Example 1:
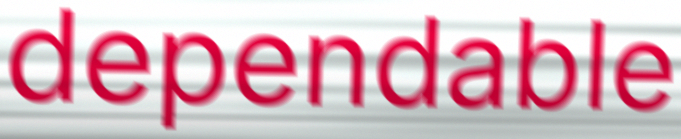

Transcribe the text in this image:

dependable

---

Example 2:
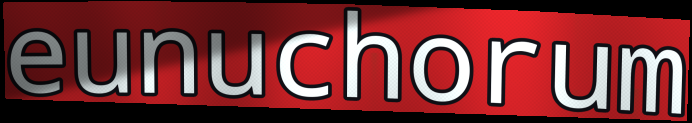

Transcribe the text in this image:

eunuchorum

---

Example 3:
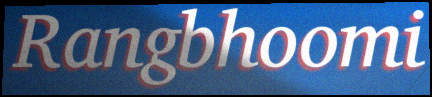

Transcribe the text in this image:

Rangbhoomi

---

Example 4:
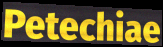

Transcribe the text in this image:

Petechiae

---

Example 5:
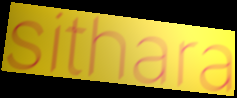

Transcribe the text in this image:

sithara